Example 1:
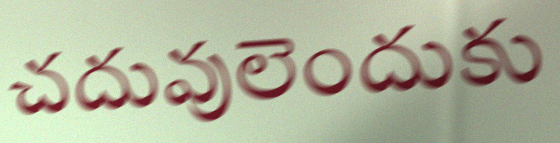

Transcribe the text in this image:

చదువులెందుకు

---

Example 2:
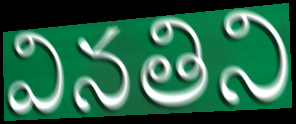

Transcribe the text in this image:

వినతిని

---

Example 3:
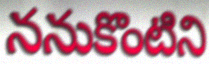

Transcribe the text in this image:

ననుకొంటిని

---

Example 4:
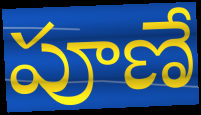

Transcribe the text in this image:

పూణే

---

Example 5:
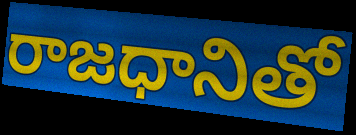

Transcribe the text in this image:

రాజధానితో